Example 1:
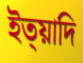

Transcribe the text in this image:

ইত্য়াদি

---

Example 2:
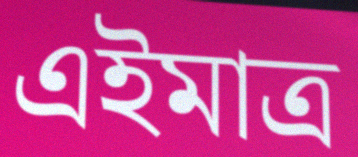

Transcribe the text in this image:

এইমাত্ৰ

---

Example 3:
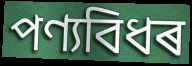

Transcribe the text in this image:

পণ্যবিধৰ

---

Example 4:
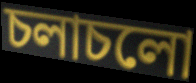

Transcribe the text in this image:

চলাচলো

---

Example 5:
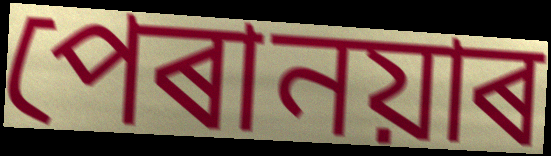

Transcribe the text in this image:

পেৰানয়াৰ